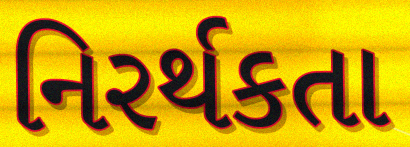
નિરર્થકતા